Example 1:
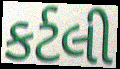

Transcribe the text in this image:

કર્ટલી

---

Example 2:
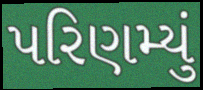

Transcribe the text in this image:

પરિણમ્યું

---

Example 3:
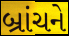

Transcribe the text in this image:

બ્રાંચને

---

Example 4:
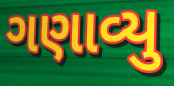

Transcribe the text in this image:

ગણાવ્યુ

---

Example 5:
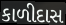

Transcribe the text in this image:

કાળીદાસ